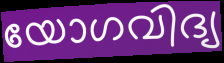
യോഗവിദ്യ